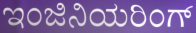
ಇಂಜಿನಿಯರಿಂಗ್